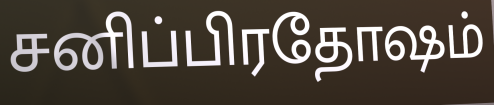
சனிப்பிரதோஷம்